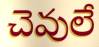
చెవులే